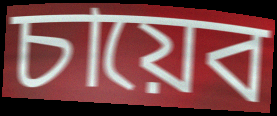
চায়েব